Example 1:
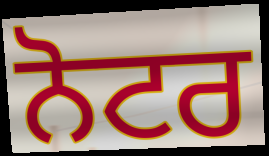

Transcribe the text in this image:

ਨੋਟਰ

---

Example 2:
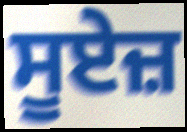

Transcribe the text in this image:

ਸੂਏਜ਼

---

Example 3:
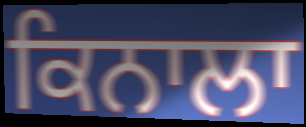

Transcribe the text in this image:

ਕਿਨਾਲਾ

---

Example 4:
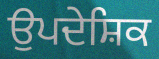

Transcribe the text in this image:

ਉਪਦੇਸ਼ਿਕ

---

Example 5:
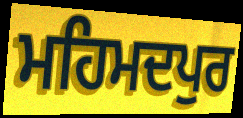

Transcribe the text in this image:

ਮਹਿਮਦਪੁਰ